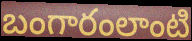
బంగారంలాంటి